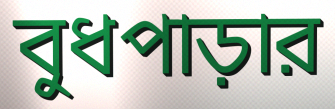
বুধপাড়ার